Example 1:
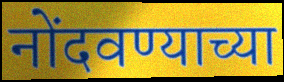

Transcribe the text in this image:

नोंदवण्याच्या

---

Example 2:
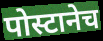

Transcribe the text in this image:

पोस्टानेच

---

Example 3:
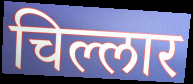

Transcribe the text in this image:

चिल्लार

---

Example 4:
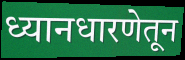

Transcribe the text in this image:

ध्यानधारणेतून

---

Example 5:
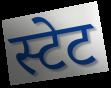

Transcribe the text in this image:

स्टेट